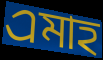
এমাহ